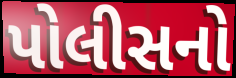
પોલીસનો